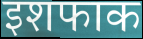
इशफाक